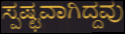
ಸ್ಪಷ್ಟವಾಗಿದ್ದವು